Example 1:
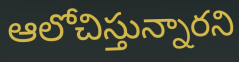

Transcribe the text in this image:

ఆలోచిస్తున్నారని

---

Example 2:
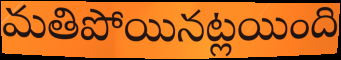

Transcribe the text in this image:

మతిపోయినట్లయింది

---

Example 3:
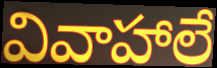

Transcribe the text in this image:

వివాహాలే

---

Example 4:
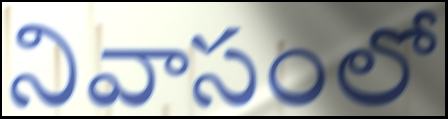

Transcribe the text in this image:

నివాసంలో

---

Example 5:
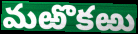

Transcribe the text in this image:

మఱొకఱు